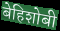
बेहिशोबी